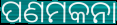
ପଣମକନା